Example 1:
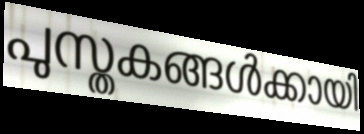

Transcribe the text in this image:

പുസ്തകങ്ങൾക്കായി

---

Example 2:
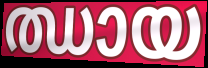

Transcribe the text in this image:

ഝായ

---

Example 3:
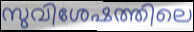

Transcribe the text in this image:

സുവിശേഷത്തിലെ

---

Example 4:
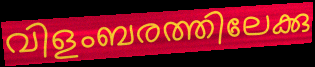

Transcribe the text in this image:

വിളംബരത്തിലേക്കു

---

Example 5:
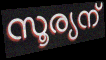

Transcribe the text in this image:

സൂര്യന്